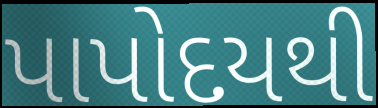
પાપોદયથી